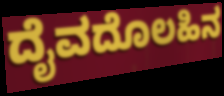
ದೈವದೊಲಹಿನ